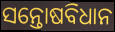
ସନ୍ତୋଷବିଧାନ